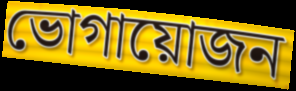
ভোগায়োজন